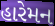
હારેમન